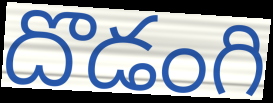
దొడంగి